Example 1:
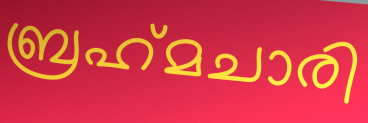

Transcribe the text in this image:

ബ്രഹ്‌മചാരി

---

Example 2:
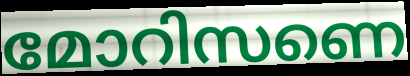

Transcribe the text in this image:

മോറിസണെ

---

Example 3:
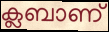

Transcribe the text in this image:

ക്ലബാണ്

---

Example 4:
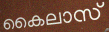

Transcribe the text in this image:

കൈലാസ്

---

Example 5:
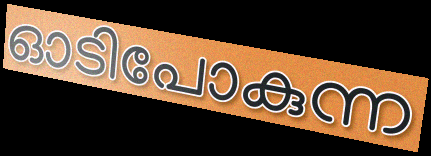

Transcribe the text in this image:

ഓടിപോകുന്ന